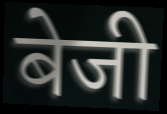
बेजी